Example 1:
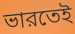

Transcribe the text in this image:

ভারতেই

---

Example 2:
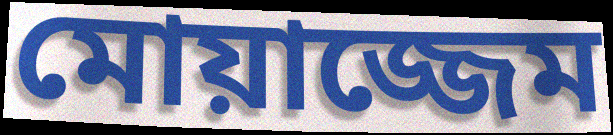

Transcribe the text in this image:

মোয়াজ্জেম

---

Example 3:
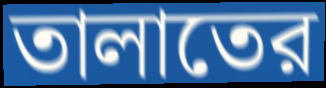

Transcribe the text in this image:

তালাতের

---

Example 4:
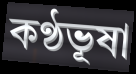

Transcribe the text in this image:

কণ্ঠভূষা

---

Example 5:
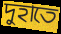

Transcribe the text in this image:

দুহাতে